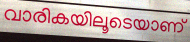
വാരികയിലൂടെയാണ്